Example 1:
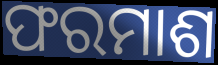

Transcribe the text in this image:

ଫରମାଶ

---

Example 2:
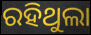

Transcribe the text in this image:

ରହିଥୁଲା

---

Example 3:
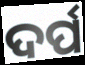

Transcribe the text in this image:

ଦର୍ପ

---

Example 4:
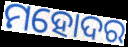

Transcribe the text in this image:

ମହୋଦର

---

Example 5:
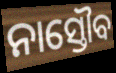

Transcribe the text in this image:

ନାସ୍ତୌବ